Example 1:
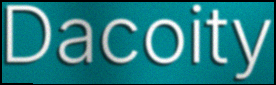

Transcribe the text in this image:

Dacoity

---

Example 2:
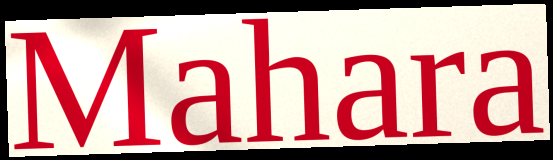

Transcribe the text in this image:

Mahara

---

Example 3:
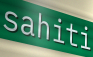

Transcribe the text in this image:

sahiti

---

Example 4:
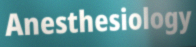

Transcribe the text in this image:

Anesthesiology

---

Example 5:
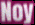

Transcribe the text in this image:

Noy